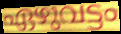
ഏഴുവട്ടം